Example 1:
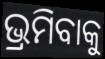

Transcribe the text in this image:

ଭ୍ରମିବାକୁ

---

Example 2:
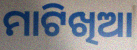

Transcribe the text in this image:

ମାଟିଖିଆ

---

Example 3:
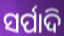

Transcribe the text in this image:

ସର୍ପାଦି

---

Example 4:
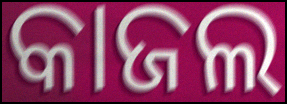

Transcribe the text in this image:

କାଜଲ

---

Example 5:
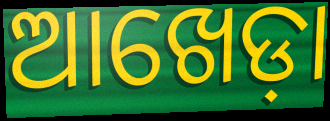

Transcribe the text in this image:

ଆଖେଡ଼ା